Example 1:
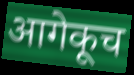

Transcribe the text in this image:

आगेकूच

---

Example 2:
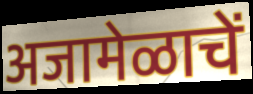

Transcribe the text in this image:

अजामेळाचें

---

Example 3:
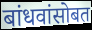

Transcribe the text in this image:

बांधवांसोबत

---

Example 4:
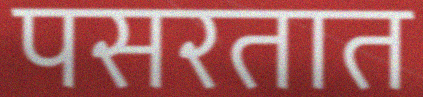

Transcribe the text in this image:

पसरतात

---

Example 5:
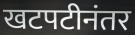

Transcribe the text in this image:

खटपटीनंतर